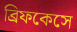
ব্রিফকেসে